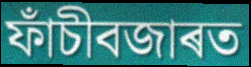
ফাঁচীবজাৰত